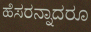
ಹೆಸರನ್ನಾದರೂ